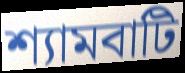
শ্যামবাটি